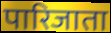
पारिजाता